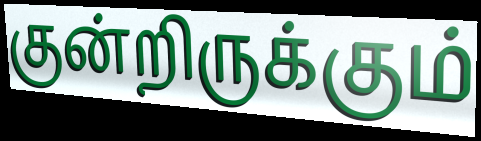
குன்றிருக்கும்